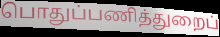
பொதுப்பணித்துறைப்